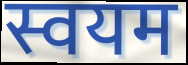
स्वयम